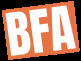
BFA